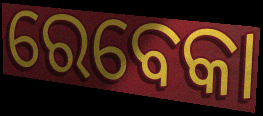
ରେବେକା